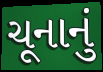
ચૂનાનું